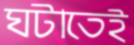
ঘটাতেই